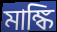
মাঙ্কি